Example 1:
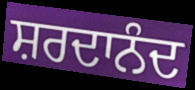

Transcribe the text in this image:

ਸ਼ਰਦਾਨੰਦ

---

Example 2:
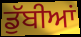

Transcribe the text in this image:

ਡੁੱਬੀਆਂ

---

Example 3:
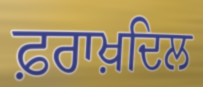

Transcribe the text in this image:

ਫ਼ਰਾਖ਼ਦਿਲ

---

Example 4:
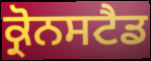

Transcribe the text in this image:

ਕ੍ਰੋਨਸਟੈਡ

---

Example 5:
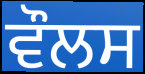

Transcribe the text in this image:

ਵੌਲਸ